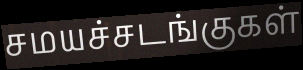
சமயச்சடங்குகள்